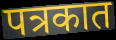
पत्रकात